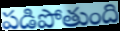
పడిపోతుంది